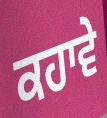
ਕਹਾਵੇ